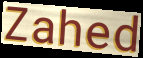
Zahed